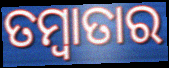
ତମ୍ବାତାର